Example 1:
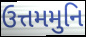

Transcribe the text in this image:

ઉત્તમમુનિ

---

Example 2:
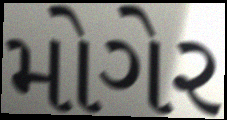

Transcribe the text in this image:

મોગેર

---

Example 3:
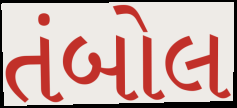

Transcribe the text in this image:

તંબોલ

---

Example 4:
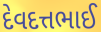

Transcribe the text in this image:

દેવદત્તભાઈ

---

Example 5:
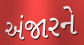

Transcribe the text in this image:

અંજારને